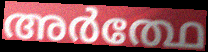
അർത്ഥേ